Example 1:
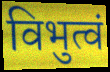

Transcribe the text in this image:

विभुत्वं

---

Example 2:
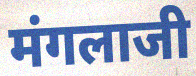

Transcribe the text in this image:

मंगलाजी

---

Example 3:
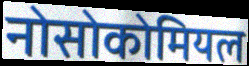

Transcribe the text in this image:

नोसोकोमियल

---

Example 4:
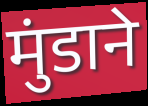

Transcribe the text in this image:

मुंडाने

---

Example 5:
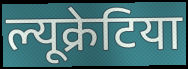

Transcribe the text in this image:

ल्यूक्रेटिया